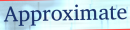
Approximate